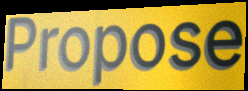
Propose